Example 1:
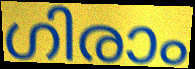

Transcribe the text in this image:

ഗിരാം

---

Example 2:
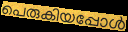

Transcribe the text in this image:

പെരുകിയപ്പോൾ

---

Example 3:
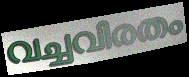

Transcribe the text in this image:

വച്ചവിരതം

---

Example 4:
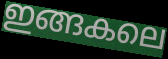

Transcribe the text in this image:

ഇങ്ങകലെ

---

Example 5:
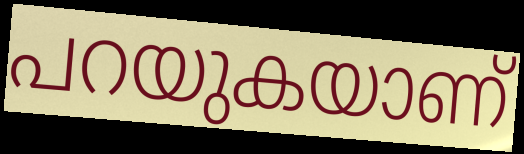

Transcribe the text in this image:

പറയുകയാണ്